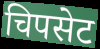
चिपसेट